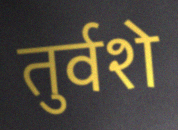
तुर्वशे